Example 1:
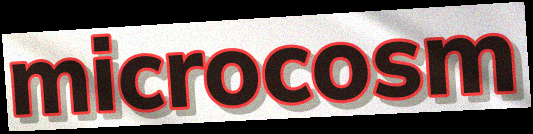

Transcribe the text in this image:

microcosm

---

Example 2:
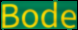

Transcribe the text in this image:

Bode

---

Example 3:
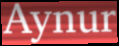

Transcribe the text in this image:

Aynur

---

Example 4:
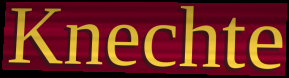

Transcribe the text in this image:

Knechte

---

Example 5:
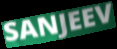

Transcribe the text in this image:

SANJEEV